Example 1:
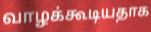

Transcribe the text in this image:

வாழக்கூடியதாக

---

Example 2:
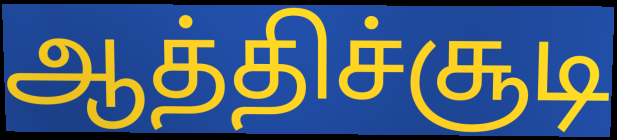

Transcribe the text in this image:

ஆத்திச்சூடி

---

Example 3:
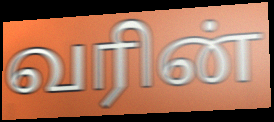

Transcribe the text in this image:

வரின்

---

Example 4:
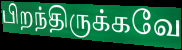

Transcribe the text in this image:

பிறந்திருக்கவே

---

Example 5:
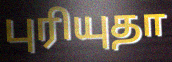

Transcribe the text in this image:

புரியுதா